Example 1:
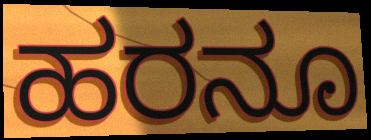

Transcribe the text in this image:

ಹರನೂ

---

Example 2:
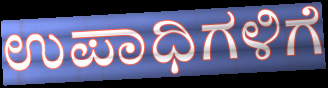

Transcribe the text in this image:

ಉಪಾಧಿಗಳಿಗೆ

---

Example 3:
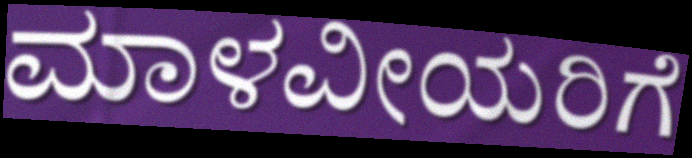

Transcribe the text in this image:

ಮಾಳವೀಯರಿಗೆ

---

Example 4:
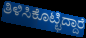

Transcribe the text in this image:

ತಿಳಿಸಿಕೊಟ್ಟಿದ್ದಾರೆ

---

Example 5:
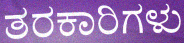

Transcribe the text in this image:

ತರಕಾರಿಗಳು